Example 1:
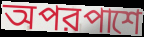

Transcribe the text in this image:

অপরপাশে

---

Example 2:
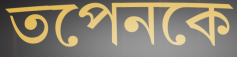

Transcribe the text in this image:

তপেনকে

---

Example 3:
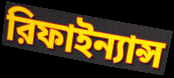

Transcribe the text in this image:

রিফাইন্যান্স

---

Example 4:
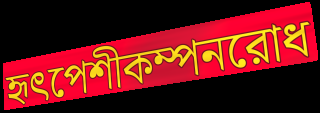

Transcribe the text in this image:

হৃৎপেশীকম্পনরোধ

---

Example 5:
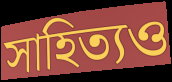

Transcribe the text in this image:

সাহিত্যও